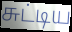
சுட்டிய